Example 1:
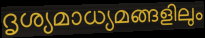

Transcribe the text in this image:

ദൃശ്യമാധ്യമങ്ങളിലും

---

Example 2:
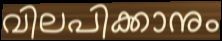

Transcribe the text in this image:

വിലപിക്കാനും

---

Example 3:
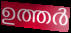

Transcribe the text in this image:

ഉത്തർ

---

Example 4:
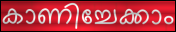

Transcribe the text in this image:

കാണിച്ചേക്കാം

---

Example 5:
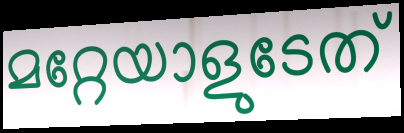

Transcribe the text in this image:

മറ്റേയാളുടേത്